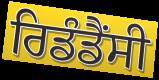
ਰਿਡੰਡੈਂਸੀ